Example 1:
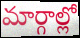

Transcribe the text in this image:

మార్గాల్లో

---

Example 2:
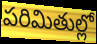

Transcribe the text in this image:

పరిమితుల్లో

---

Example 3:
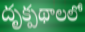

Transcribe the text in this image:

దృక్పథాలలో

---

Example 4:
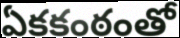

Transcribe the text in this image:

ఏకకంఠంతో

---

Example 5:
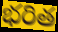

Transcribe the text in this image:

భరిత